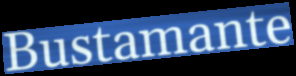
Bustamante